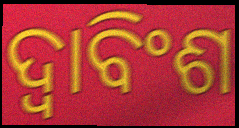
ଦ୍ୱାବିଂଶ